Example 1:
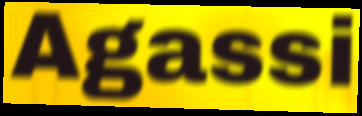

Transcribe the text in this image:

Agassi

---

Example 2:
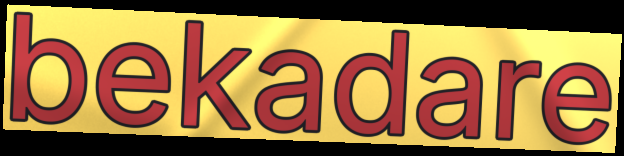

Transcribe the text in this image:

bekadare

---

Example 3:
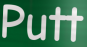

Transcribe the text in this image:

Putt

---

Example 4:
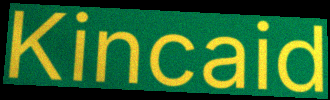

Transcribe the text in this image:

Kincaid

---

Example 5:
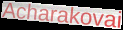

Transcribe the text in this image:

Acharakovai